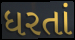
ધરતાં